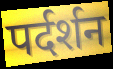
पर्दर्शन